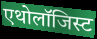
एथोलॉजिस्ट